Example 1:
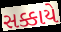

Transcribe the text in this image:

સક્કાયે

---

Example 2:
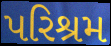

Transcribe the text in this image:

પરિશ્રમ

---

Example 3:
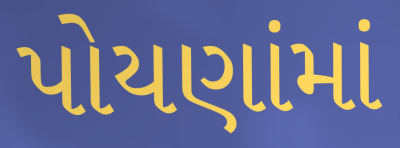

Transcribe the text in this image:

પોયણાંમાં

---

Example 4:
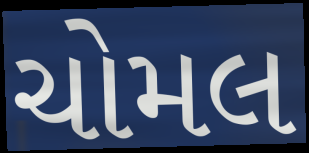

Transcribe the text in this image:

ચોમલ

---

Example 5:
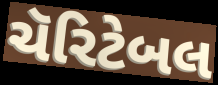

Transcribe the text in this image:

ચૅરિટેબલ